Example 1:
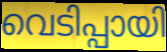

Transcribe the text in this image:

വെടിപ്പായി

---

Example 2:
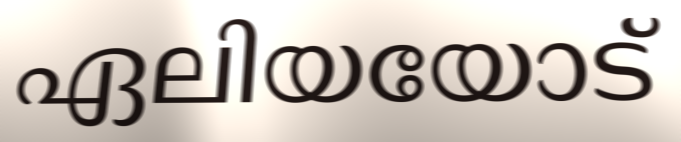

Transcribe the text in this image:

ഏലിയയോട്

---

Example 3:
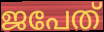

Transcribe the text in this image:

ജപേത്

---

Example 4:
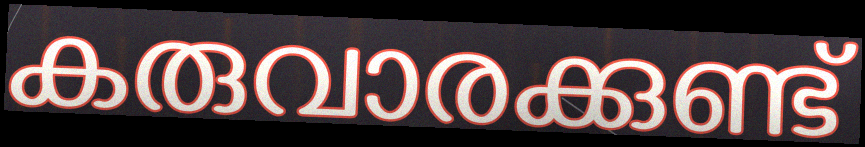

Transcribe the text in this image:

കരുവാരക്കുണ്ട്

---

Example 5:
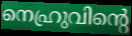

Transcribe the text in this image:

നെഹ്രുവിന്റെ